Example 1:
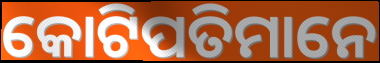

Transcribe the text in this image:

କୋଟିପତିମାନେ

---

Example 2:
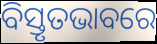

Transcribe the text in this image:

ବିସ୍ତୃତଭାବରେ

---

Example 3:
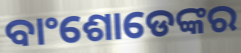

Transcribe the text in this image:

ବାଂଶୋଡେଙ୍କର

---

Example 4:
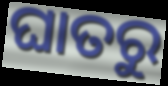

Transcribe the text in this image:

ଘାତରୁ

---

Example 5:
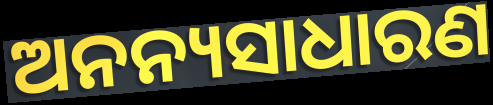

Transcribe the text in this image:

ଅନନ୍ୟସାଧାରଣ